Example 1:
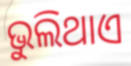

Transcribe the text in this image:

ଭୁଲିଥାଏ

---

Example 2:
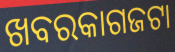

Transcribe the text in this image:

ଖବରକାଗଜଟା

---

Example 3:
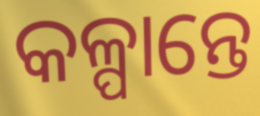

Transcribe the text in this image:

କଳ୍ପାନ୍ତେ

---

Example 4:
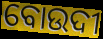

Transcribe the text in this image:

ବୋଉଦୀ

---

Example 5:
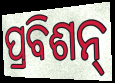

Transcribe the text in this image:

ପ୍ରବିଶନ୍